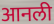
आनली